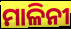
ମାଳିନୀ